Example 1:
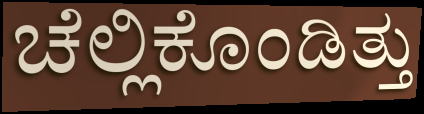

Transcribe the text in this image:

ಚೆಲ್ಲಿಕೊಂಡಿತ್ತು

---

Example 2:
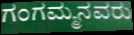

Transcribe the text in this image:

ಗಂಗಮ್ಮನವರು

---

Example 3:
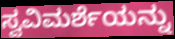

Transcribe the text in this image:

ಸ್ವವಿಮರ್ಶೆಯನ್ನು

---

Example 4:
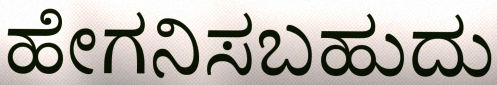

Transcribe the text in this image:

ಹೇಗನಿಸಬಹುದು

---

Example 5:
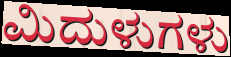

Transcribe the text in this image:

ಮಿದುಳುಗಳು